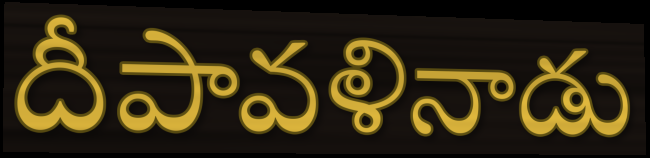
దీపావళినాడు